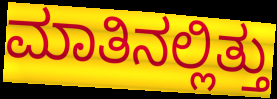
ಮಾತಿನಲ್ಲಿತ್ತು